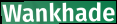
Wankhade